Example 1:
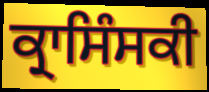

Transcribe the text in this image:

ਕ੍ਰਾਸਿੰਸਕੀ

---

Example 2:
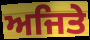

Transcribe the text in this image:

ਅਜਿਤੇ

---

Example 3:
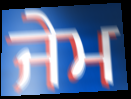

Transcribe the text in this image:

ਜੇਮ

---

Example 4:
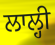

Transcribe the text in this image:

ਲਾਲ੍ਹੀ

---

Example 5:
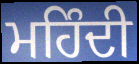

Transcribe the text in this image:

ਮਹਿੰਦੀ